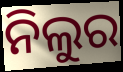
ନିଲୁର